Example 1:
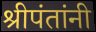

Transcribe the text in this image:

श्रीपंतांनी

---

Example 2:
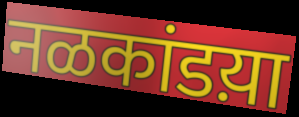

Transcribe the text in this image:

नळकांडय़ा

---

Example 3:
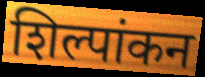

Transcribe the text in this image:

शिल्पांकन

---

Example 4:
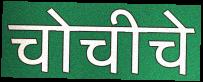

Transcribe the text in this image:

चोचीचे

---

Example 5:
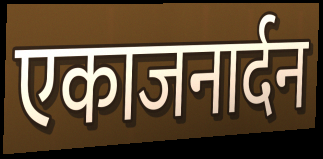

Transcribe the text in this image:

एकाजनार्दन